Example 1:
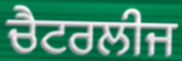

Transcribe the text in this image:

ਚੈਟਰਲੀਜ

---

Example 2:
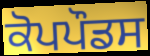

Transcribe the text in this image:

ਕੋਪਪੌਡਸ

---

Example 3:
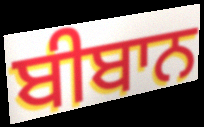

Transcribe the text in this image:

ਬੀਬਾਨ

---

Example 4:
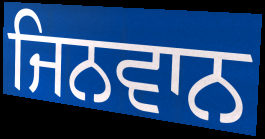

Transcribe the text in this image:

ਜਿਨਵਾਨ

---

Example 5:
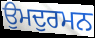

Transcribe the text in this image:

ਉਮਦੁਰਮਨ